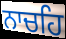
ਨਾਚਹਿ